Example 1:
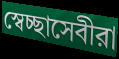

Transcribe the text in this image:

স্বেচ্ছাসেবীরা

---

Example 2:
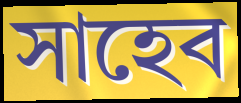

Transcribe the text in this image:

সাহেব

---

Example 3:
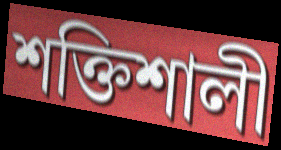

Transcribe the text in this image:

শক্তিশালী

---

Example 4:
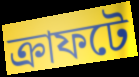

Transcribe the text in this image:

ক্রাফটে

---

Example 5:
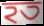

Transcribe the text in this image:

হত